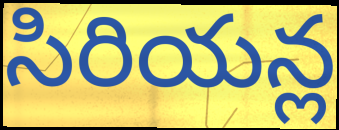
సిరియన్ల